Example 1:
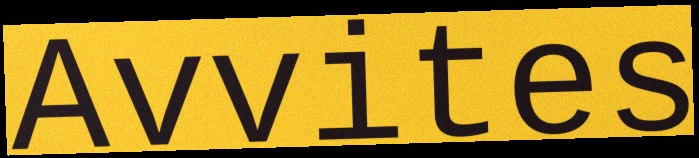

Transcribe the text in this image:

Avvites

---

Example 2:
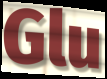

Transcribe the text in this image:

Glu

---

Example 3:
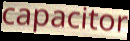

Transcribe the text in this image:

capacitor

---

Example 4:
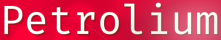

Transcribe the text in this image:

Petrolium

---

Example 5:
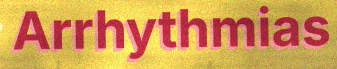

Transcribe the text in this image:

Arrhythmias